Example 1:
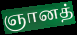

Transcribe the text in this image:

ஞானத்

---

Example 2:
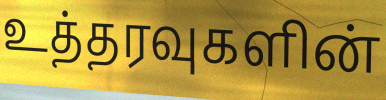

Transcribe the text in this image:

உத்தரவுகளின்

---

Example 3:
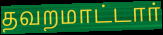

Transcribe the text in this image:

தவறமாட்டார்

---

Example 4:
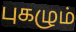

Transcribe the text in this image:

புகழும்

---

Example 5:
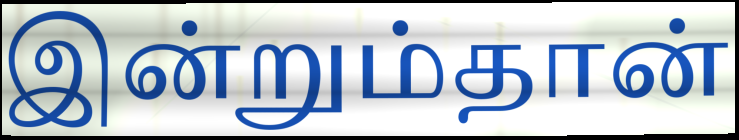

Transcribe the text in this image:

இன்றும்தான்